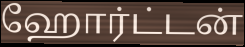
ஹோர்ட்டன்